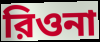
রিওনা